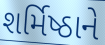
શર્મિષ્ઠાને